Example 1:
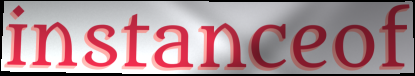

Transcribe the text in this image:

instanceof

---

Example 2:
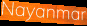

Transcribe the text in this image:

Nayanmar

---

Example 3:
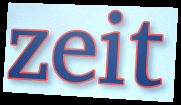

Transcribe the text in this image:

zeit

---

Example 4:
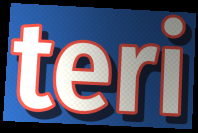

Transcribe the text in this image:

teri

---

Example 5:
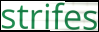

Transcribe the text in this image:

strifes